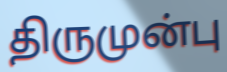
திருமுன்பு